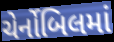
ચેર્નોબિલમાં